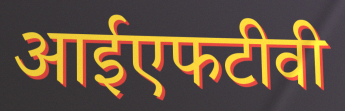
आईएफटीवी